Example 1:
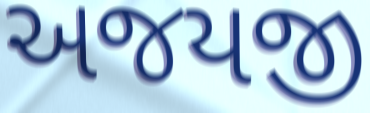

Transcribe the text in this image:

અજયજી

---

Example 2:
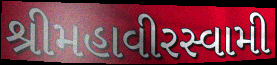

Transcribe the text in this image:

શ્રીમહાવીરસ્વામી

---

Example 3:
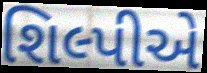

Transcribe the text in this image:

શિલ્પીએ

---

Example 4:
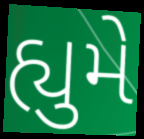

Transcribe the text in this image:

હ્યુમે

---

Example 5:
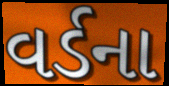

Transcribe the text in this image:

વર્ડના